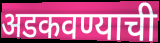
अडकवण्याची